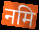
नमि